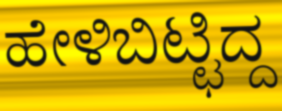
ಹೇಳಿಬಿಟ್ಟಿದ್ದ